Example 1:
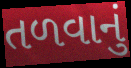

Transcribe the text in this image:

તળવાનું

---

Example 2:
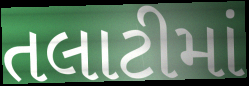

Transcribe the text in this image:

તલાટીમાં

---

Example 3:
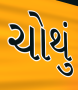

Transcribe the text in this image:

ચોથું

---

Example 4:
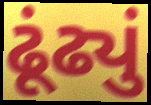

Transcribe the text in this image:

ઢૂંઢ્યું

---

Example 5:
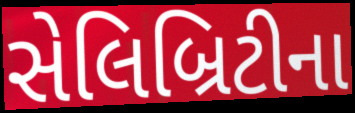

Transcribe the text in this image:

સેલિબ્રિટીના